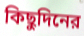
কিছুদিনের